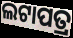
ଲଟାପତ୍ର